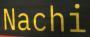
Nachi